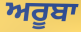
ਅਰੂਬਾ